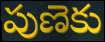
పుణెకు